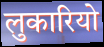
लुकारियो